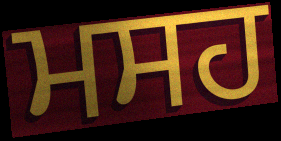
ਮਸਹ